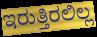
ಇರುತ್ತಿರಲಿಲ್ಲ